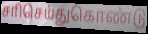
சரிசெய்துகொண்டு